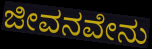
ಜೀವನವೇನು